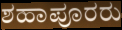
ಶಹಾಪೂರರು